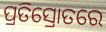
ପ୍ରତିସ୍ରୋତରେ